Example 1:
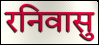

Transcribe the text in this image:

रनिवासु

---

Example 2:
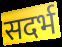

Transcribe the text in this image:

सदर्भ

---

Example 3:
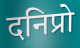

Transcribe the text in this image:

दनिप्रो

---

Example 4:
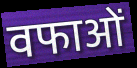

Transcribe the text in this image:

वफाओं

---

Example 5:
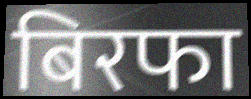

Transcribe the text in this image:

बिरफा